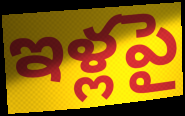
ఇళ్లపై